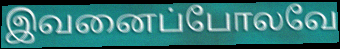
இவனைப்போலவே